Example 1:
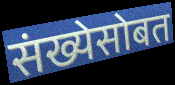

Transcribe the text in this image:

संख्येसोबत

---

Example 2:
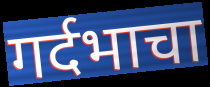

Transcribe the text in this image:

गर्दभाचा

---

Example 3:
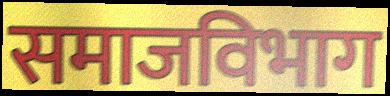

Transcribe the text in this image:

समाजविभाग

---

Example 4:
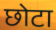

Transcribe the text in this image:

छोटा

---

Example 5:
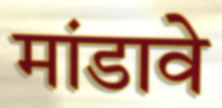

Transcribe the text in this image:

मांडावे